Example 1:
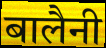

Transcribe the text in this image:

बालैनी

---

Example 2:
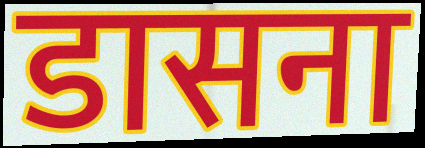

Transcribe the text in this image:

डासना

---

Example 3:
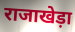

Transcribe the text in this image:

राजाखेड़ा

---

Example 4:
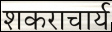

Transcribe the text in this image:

शकराचार्य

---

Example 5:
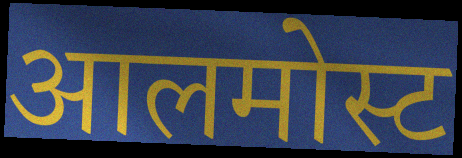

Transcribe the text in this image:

आलमोस्ट